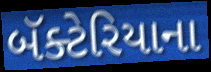
બૅક્ટેરિયાના